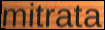
mitrata